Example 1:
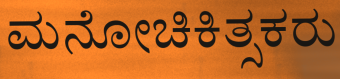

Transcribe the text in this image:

ಮನೋಚಿಕಿತ್ಸಕರು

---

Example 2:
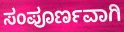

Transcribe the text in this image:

ಸಂಪೂರ್ಣವಾಗಿ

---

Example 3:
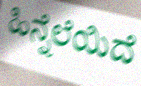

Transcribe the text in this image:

ಹಿನ್ನೆಲೆಯಿದೆ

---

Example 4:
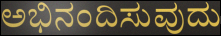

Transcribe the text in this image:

ಅಭಿನಂದಿಸುವುದು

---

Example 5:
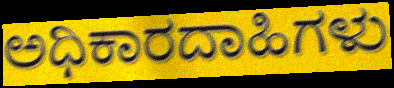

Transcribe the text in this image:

ಅಧಿಕಾರದಾಹಿಗಳು